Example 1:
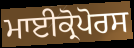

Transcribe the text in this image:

ਮਾਈਕ੍ਰੋਪੋਰਸ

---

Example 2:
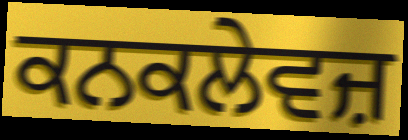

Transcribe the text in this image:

ਕਨਕਲੇਵਜ਼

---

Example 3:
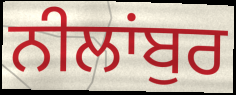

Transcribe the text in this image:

ਨੀਲਾਂਬੁਰ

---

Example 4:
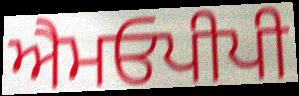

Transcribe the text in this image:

ਐਮਓਪੀਪੀ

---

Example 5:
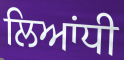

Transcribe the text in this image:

ਲਿਆਂਧੀ